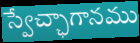
స్వేచ్ఛాగానము